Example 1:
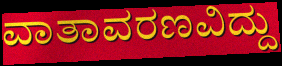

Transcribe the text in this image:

ವಾತಾವರಣವಿದ್ದು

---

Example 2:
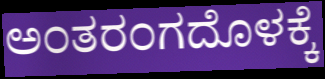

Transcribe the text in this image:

ಅಂತರಂಗದೊಳಕ್ಕೆ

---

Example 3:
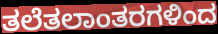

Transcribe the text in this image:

ತಲೆತಲಾಂತರಗಳಿಂದ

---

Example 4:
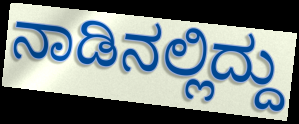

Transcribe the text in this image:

ನಾಡಿನಲ್ಲಿದ್ದು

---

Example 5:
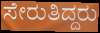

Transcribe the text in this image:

ಸೇರುತಿದ್ದರು